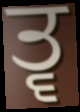
ਤ੍ਵ